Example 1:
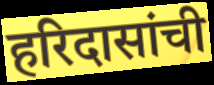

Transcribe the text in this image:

हरिदासांची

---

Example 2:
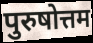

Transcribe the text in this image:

पुरुषोत्तम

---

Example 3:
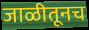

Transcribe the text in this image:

जाळीतूनच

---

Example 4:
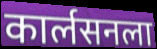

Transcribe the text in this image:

कार्लसनला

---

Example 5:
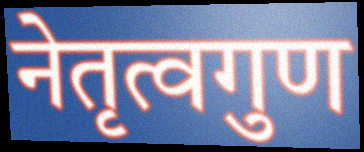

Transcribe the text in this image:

नेतृत्वगुण